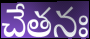
చేతనః